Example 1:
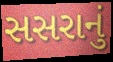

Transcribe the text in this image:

સસરાનું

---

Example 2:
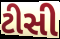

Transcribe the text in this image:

ટીસી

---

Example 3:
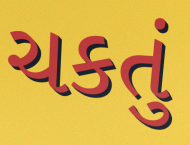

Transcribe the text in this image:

ચકતું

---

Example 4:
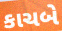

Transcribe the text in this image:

કાચબે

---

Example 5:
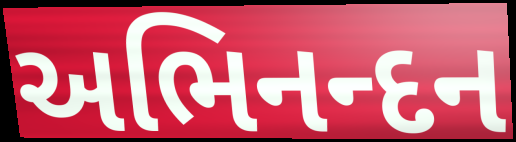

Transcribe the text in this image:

અભિનન્દન